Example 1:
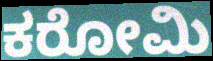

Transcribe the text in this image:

ಕರೋಮಿ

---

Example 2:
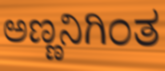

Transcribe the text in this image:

ಅಣ್ಣನಿಗಿಂತ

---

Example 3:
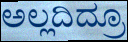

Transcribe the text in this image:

ಅಲ್ಲದಿದ್ರೂ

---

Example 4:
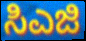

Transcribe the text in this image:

ಸಿಎಜಿ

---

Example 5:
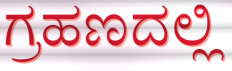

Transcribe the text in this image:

ಗ್ರಹಣದಲ್ಲಿ